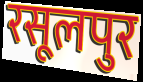
रसूलपुर